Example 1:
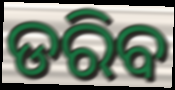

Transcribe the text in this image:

ଡରିବ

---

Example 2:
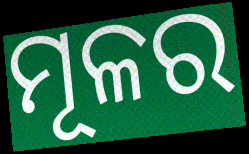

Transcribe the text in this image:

ମୂଳର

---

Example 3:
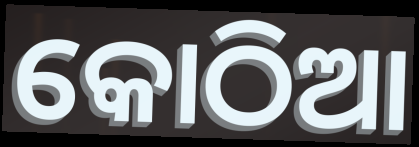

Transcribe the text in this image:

କୋଠିଆ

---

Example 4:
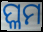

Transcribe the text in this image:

ପ୍ଳମ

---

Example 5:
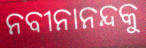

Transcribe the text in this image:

ନବୀନାନନ୍ଦକୁ